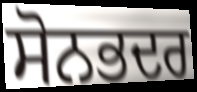
ਸੋਨਭਦਰ